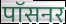
पॉसनर